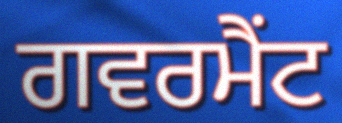
ਗਵਰਮੈਂਟ